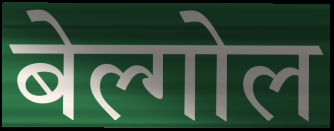
बेल्गोल